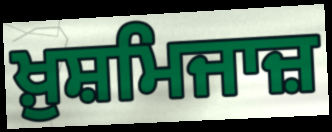
ਖ਼ੁਸ਼ਮਿਜਾਜ਼